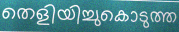
തെളിയിച്ചുകൊടുത്ത